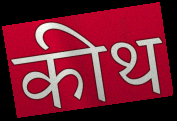
कीथ